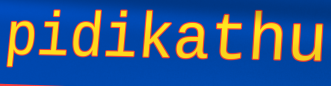
pidikathu